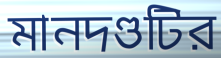
মানদণ্ডটির